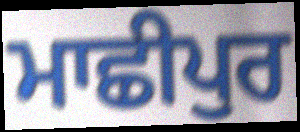
ਮਾਛੀਪੁਰ